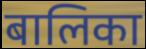
बालिका